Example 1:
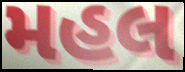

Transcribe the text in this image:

મહલ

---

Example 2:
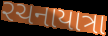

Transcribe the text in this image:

રચનાયાત્રા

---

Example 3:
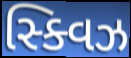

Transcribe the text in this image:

સ્ક્વિઝ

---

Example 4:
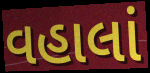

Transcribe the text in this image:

વહાલાં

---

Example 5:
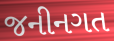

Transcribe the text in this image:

જનીનગત